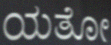
ಯತೋ